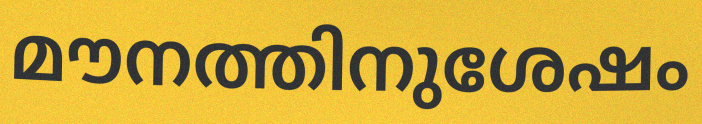
മൗനത്തിനുശേഷം